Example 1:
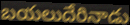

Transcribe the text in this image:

బయలుదేరినాడు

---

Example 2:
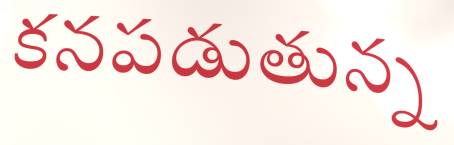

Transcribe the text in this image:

కనపడుతున్న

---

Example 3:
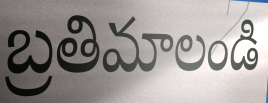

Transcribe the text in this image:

బ్రతిమాలండి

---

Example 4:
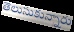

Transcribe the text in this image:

తెలుసుకున్నారు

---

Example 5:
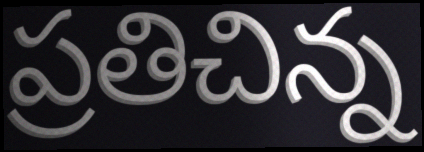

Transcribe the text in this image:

ప్రతిచిన్న